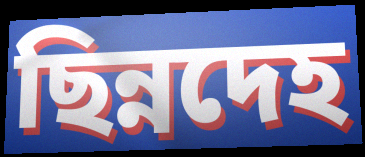
ছিন্নদেহ